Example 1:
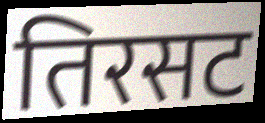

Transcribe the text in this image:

तिरसट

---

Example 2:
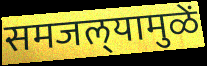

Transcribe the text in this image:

समजल्यामुळें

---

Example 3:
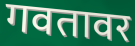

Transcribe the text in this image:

गवतावर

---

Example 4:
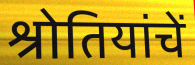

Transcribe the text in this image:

श्रोतियांचें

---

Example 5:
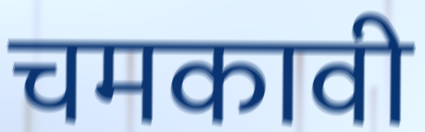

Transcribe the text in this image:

चमकावी